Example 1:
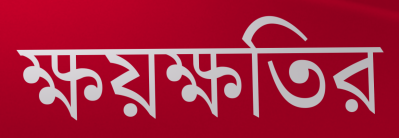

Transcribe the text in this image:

ক্ষয়ক্ষতির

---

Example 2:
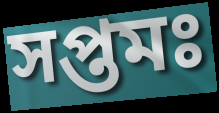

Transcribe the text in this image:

সপ্তমঃ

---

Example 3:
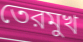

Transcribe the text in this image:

তেরমুখ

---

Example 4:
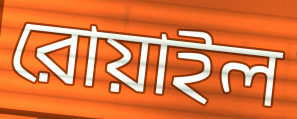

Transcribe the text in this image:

রোয়াইল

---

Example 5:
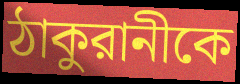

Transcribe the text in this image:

ঠাকুরানীকে